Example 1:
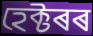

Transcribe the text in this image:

হেক্টৰৰ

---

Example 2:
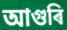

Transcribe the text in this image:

আগুৰি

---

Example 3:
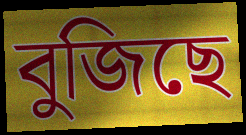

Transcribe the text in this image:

বুজিছে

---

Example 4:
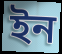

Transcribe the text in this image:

ইন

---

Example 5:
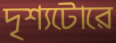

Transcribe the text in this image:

দৃশ্যটোৱে